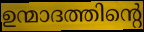
ഉന്മാദത്തിന്റെ